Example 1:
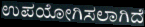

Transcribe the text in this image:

ಉಪಯೋಗಿಸಲಾಗಿದೆ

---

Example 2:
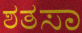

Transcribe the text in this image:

ಶತಸಾ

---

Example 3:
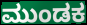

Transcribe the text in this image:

ಮುಂಡಕ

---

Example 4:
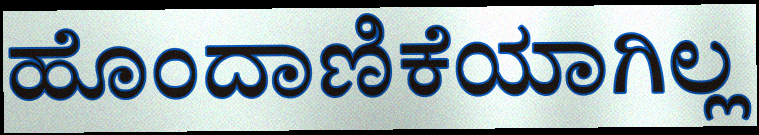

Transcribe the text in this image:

ಹೊಂದಾಣಿಕೆಯಾಗಿಲ್ಲ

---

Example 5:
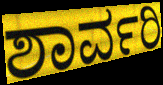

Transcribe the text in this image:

ಶಾರ್ವರಿ